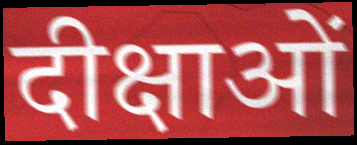
दीक्षाओं